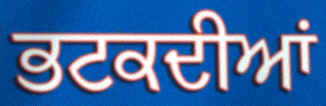
ਭਟਕਦੀਆਂ